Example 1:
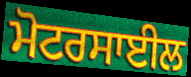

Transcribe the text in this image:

ਮੋਟਰਸਾਈਲ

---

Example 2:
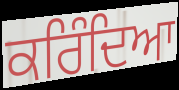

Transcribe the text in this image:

ਕਰਿੰਦਿਆ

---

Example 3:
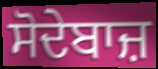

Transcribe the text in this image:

ਸੋਦੇਬਾਜ਼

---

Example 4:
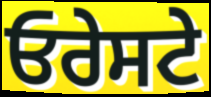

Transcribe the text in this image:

ਓਰੇਸਟੇ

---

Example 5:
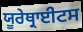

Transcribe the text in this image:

ਯੂਰੇਥ੍ਰਾਈਟਸ